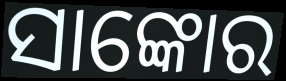
ସାଙ୍କୋର